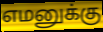
எமனுக்கு